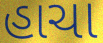
હાચા